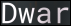
Dwar